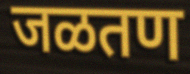
जळतण